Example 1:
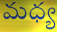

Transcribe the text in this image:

మధ్య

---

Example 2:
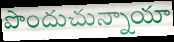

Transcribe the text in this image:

పొందుచున్నాయా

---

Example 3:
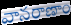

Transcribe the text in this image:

వానరాణాం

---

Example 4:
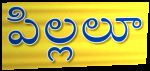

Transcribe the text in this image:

పిల్లలూ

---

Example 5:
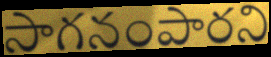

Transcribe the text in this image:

సాగనంపారని